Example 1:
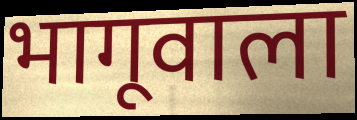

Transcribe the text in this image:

भागूवाला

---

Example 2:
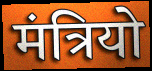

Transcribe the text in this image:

मंत्रियो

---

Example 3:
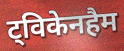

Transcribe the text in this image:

ट्विकेनहैम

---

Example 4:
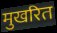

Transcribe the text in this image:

मुखरित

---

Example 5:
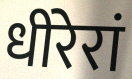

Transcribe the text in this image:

धीरेरां